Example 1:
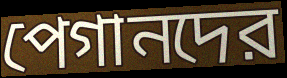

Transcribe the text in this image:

পেগানদের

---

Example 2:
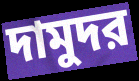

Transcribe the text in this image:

দামুদর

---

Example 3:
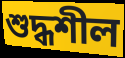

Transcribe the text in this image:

শুদ্ধশীল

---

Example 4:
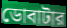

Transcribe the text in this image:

ডোবাটার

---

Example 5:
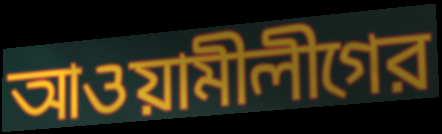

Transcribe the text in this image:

আওয়ামীলীগের